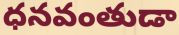
ధనవంతుడా